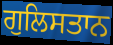
ਗੁਲਿਸਤਾਨ